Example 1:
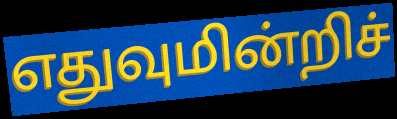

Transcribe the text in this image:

எதுவுமின்றிச்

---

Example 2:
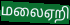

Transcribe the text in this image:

மலைஏறி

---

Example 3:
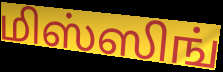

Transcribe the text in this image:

மிஸ்ஸிங்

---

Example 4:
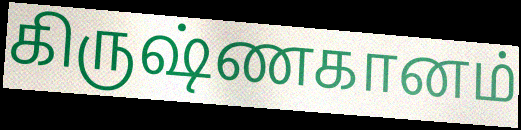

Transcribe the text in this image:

கிருஷ்ணகானம்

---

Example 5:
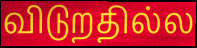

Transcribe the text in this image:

விடுறதில்ல